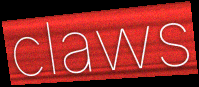
claws